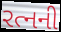
રત્નની